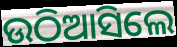
ଉଠିଆସିଲେ